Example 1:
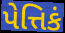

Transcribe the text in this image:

પેત્તિકં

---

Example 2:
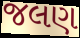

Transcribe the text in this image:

જલણ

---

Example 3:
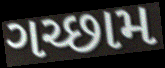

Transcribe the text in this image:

ગચ્છામ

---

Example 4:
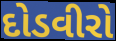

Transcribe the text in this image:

દોડવીરો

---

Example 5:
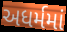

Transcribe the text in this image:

અધર્મમાં